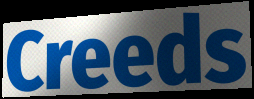
Creeds